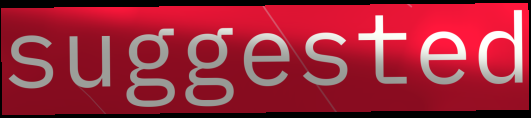
suggested